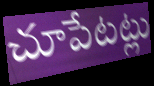
చూపేటట్లు